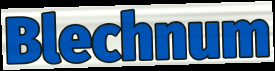
Blechnum